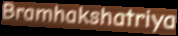
Bramhakshatriya